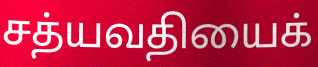
சத்யவதியைக்